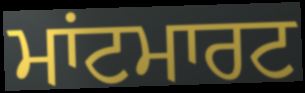
ਮਾਂਟਮਾਰਟ